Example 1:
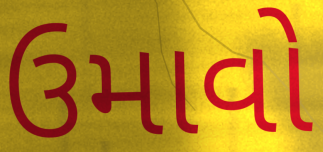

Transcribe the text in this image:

ઉમાવો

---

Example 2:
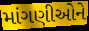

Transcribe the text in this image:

માંગણીઓને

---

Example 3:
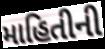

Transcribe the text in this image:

માહિતીની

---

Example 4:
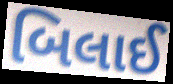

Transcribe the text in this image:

બિલાઈ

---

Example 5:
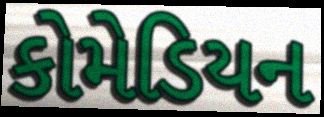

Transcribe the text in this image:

કોમેડિયન